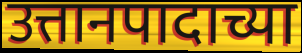
उत्तानपादाच्या